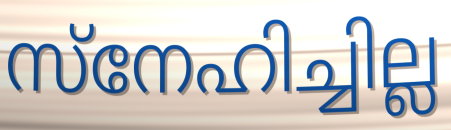
സ്നേഹിച്ചില്ല